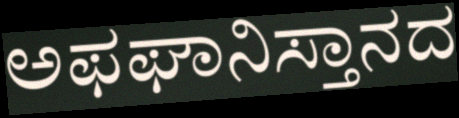
ಅಫಘಾನಿಸ್ತಾನದ